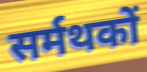
सर्मथकों